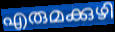
എരുമക്കുഴി